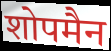
शोपमैन